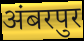
अंबरपुर